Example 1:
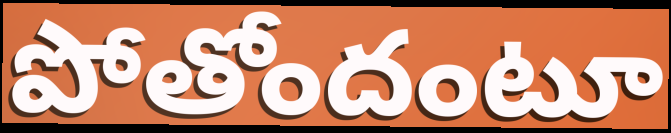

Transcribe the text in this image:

పోతోందంటూ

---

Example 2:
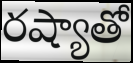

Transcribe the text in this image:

రష్యాతో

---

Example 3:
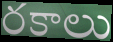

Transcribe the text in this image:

రకాలు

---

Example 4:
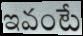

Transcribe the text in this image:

ఇవంటే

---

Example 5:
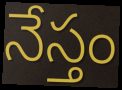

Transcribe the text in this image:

నేస్తం